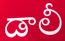
డాలీ